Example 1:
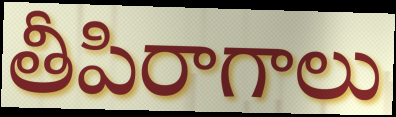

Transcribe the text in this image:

తీపిరాగాలు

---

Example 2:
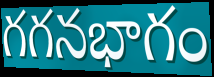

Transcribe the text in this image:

గగనభాగం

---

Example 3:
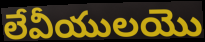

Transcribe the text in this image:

లేవీయులయొ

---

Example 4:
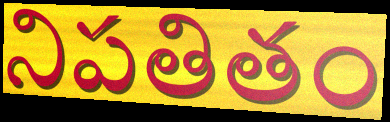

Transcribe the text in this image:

నిపతితం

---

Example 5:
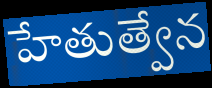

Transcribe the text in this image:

హేతుత్వేన